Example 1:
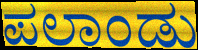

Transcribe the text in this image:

ಪಲಾಂಡು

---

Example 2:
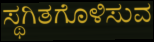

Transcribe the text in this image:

ಸ್ಥಗಿತಗೊಳಿಸುವ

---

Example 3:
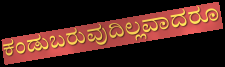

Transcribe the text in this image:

ಕಂಡುಬರುವುದಿಲ್ಲವಾದರೂ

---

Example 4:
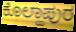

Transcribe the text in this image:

ಕೊಲ್ಹಾಪುರ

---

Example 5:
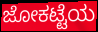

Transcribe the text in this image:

ಜೋಕಟ್ಟೆಯ